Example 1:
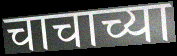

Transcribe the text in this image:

चाचाच्या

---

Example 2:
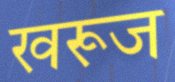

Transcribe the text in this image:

खरूज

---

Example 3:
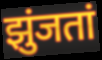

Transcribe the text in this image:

झुंजतां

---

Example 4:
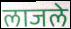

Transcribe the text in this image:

लाजले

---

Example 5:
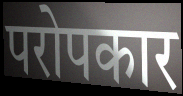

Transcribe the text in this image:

परोपकार